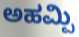
ಅಹಮ್ಪಿ